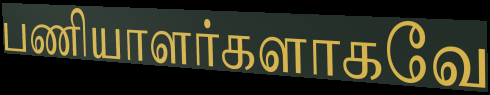
பணியாளர்களாகவே